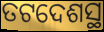
ତଟଦେଶସ୍ଥ